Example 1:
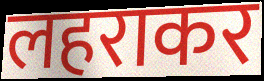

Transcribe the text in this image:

लहराकर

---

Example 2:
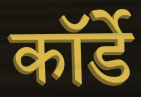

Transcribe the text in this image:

कॉर्डे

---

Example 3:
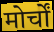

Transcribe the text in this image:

मोर्चों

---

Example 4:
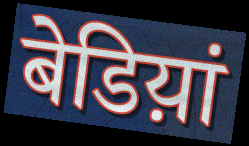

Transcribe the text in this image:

बेडिय़ां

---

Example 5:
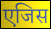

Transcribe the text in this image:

एजिस